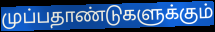
முப்பதாண்டுகளுக்கும்